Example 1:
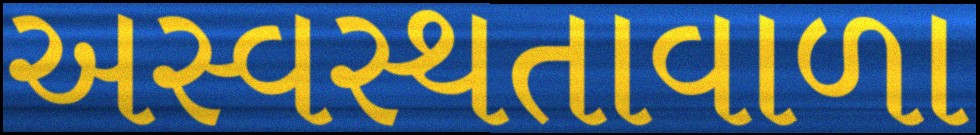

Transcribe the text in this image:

અસ્વસ્થતાવાળા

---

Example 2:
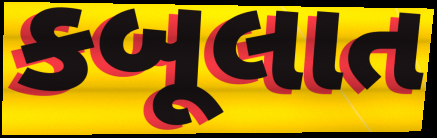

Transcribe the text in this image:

કબૂલાત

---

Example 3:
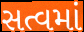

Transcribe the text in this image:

સત્વમાં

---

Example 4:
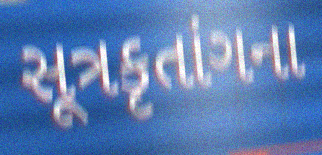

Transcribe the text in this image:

સૂત્રકૃતાંગના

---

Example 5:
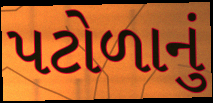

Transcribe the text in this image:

પટોળાનું